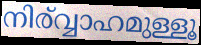
നിര്വ്വാഹമുള്ളൂ